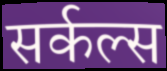
सर्कल्स